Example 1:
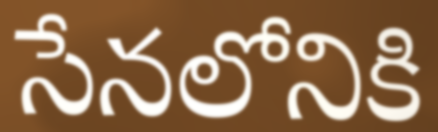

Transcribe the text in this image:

సేనలోనికి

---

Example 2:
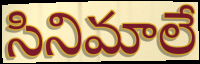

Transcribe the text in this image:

సినిమాలే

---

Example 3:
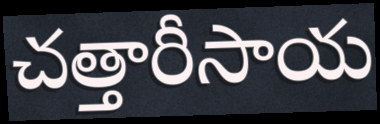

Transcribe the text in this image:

చత్తారీసాయ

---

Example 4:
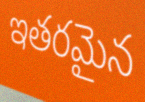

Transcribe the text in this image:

ఇతరమైన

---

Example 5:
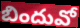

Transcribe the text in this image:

బిందువో